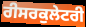
ਰੀਸਰਕੁਲੇਟਰੀ